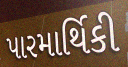
પારમાર્થિકી